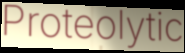
Proteolytic